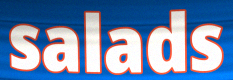
salads